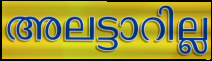
അലട്ടാറില്ല